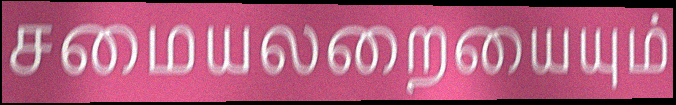
சமையலறையையும்